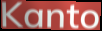
Kanto